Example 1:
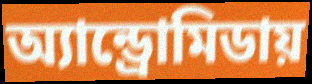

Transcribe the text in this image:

অ্যান্ড্রোমিডায়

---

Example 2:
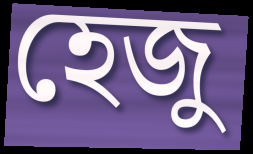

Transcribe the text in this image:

হেজু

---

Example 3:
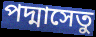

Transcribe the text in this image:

পদ্মাসেতু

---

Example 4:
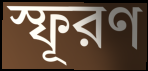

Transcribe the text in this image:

স্ফূরণ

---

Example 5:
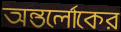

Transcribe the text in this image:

অন্তর্লোকের